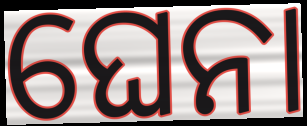
ଘେନା